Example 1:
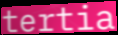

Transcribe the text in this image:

tertia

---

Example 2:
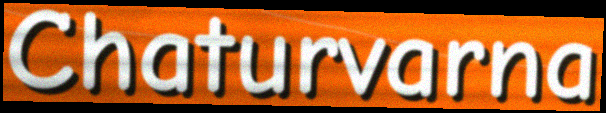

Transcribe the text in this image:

Chaturvarna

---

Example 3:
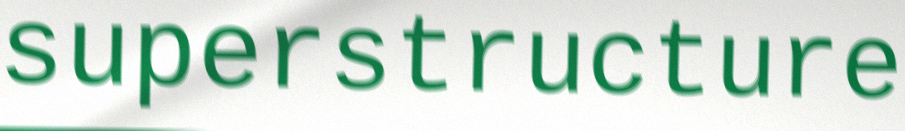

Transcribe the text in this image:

superstructure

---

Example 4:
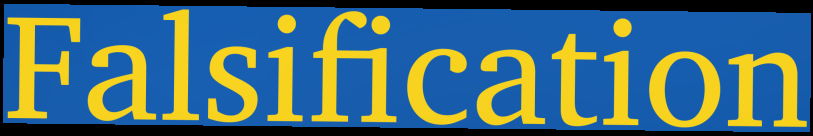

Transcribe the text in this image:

Falsification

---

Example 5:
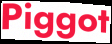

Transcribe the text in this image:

Piggot